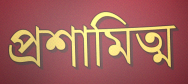
প্রশামিত্ম